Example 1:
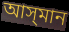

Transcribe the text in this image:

আস্‌মান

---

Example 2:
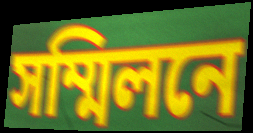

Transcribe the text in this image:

সম্মিলনে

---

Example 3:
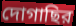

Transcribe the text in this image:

দোগাছির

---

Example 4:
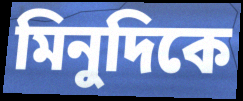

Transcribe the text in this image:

মিনুদিকে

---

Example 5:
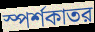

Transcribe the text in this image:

স্পর্শকাতর